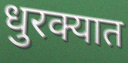
धुरक्यात